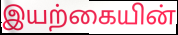
இயற்கையின்